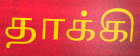
தாக்கி